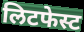
लिटफेस्ट